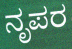
ನೃಪರ